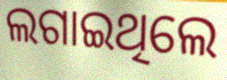
ଲଗାଇଥିଲେ